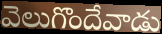
వెలుగొందేవాడు